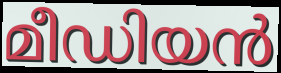
മീഡിയൻ